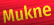
Mukne